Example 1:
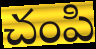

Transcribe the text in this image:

చంపి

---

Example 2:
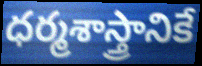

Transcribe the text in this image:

ధర్మశాస్త్రానికే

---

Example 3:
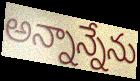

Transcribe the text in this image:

అన్నాన్నేను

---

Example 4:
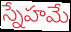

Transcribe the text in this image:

స్నేహమే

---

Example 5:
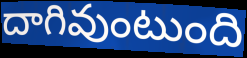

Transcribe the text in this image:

దాగివుంటుంది